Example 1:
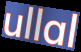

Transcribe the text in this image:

ullal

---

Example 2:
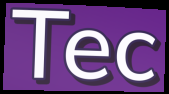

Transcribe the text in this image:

Tec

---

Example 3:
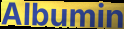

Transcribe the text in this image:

Albumin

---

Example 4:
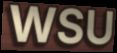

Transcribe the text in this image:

WSU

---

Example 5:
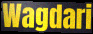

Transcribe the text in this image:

Wagdari